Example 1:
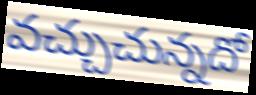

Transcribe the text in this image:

వచ్చుచున్నదో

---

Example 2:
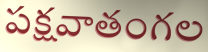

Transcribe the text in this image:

పక్షవాతంగల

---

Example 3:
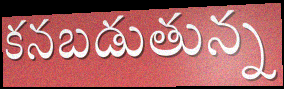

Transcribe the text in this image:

కనబడుతున్న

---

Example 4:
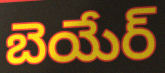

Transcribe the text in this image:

బెయేర్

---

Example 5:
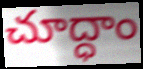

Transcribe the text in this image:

చూద్ధాం